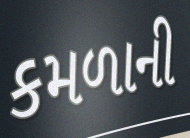
કમળાની